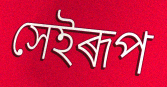
সেইৰূপ